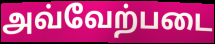
அவ்வேற்படை